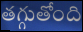
తగ్గుతోంది